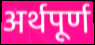
अर्थपूर्ण